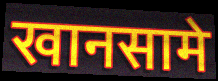
खानसामे